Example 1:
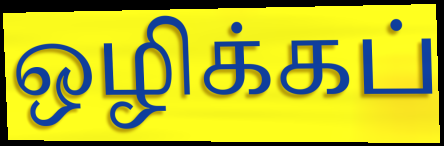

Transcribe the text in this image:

ஒழிக்கப்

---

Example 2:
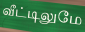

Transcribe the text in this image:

வீட்டிலுமே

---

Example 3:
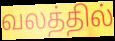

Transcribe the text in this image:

வலத்தில்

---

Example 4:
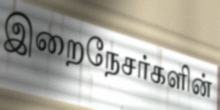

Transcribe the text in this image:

இறைநேசர்களின்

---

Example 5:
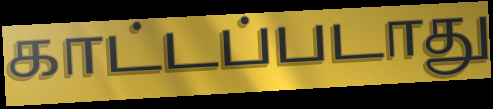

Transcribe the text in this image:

காட்டப்படாது